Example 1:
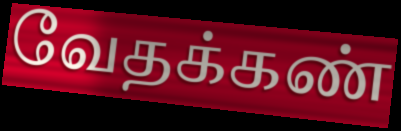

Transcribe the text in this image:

வேதக்கண்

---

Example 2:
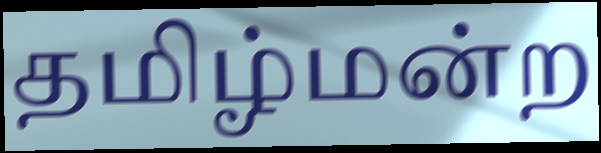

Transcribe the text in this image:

தமிழ்மன்ற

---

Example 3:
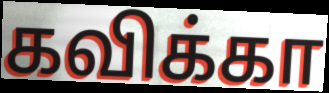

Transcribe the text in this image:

கவிக்கா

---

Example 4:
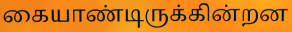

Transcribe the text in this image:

கையாண்டிருக்கின்றன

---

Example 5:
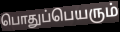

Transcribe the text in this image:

பொதுப்பெயரும்